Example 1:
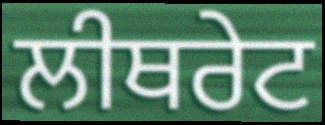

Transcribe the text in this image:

ਲੀਥਰੇਟ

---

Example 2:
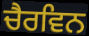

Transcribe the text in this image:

ਚੈਰਵਿਨ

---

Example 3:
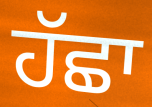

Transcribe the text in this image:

ਹੱਛਾ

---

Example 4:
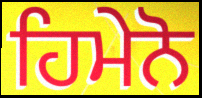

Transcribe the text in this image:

ਹਿਮੇਨੋ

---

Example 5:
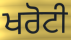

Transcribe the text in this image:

ਖਰੋਟੀ